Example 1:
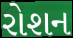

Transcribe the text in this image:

રોશન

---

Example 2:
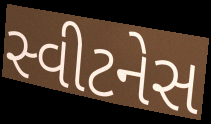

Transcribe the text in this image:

સ્વીટનેસ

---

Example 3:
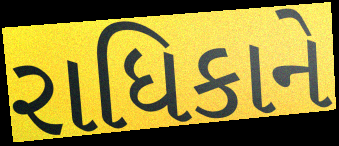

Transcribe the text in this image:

રાધિકાને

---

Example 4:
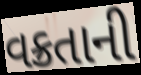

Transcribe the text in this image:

વક્રતાની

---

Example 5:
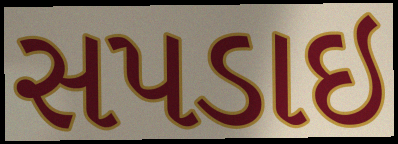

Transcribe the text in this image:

સપડાઇ